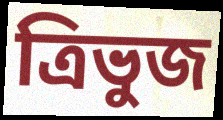
ত্ৰিভুজ